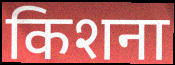
किशना